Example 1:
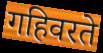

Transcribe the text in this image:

गहिवरते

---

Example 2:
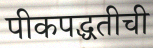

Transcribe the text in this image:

पीकपद्धतीची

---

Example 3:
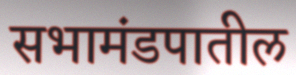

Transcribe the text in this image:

सभामंडपातील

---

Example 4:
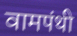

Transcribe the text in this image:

वामपंथी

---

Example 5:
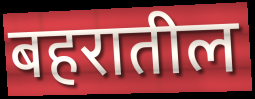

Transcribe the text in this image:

बहरातील